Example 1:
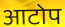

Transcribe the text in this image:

आटोप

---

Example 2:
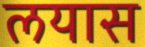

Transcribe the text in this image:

लयास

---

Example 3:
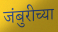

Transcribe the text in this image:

जंबुरीच्या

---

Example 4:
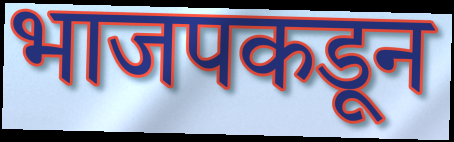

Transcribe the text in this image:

भाजपकडून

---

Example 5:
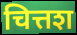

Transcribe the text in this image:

चित्तश